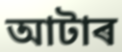
আটাৰ